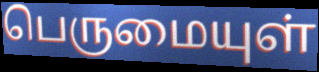
பெருமையுள்